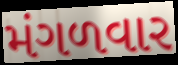
મંગળવાર